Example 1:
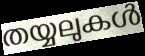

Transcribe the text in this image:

തയ്യലുകൾ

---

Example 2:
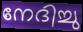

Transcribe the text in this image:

നേദിച്ചു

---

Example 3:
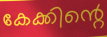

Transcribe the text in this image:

കേക്കിന്റെ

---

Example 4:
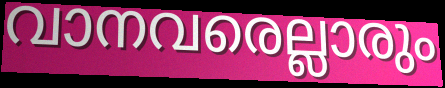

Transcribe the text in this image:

വാനവരെല്ലാരും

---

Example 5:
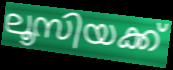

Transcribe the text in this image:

ലൂസിയക്ക്